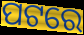
ପଟରେ